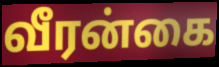
வீரன்கை